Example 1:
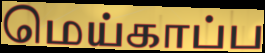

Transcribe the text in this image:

மெய்காப்ப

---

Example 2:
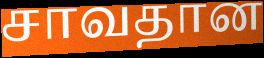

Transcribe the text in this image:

சாவதான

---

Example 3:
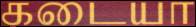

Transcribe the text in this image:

கடையா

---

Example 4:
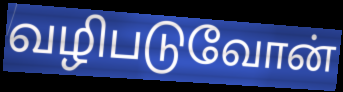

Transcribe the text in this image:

வழிபடுவோன்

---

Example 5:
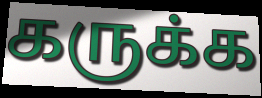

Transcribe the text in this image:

கருக்க